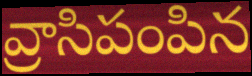
వ్రాసిపంపిన